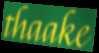
thaake